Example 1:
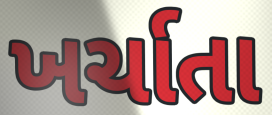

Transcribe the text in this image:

ખર્ચાતા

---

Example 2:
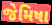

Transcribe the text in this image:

જેમિષા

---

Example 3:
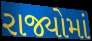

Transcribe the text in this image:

રાજ્યોમાં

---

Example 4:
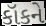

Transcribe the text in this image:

કૉકને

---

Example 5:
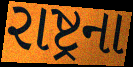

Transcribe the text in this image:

રાષ્ટ્રના